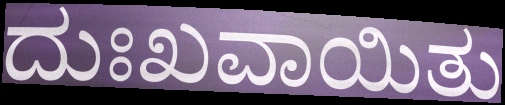
ದುಃಖವಾಯಿತು